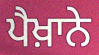
ਪੈਖ਼ਾਨੇ